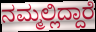
ನಮ್ಮಲ್ಲಿದ್ದಾರೆ